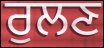
ਰੁਲਣ